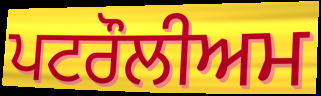
ਪਟਰੌਲੀਅਮ